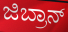
ಜಿಬ್ರಾನ್